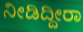
ನೀಡಿದ್ದೀರಾ